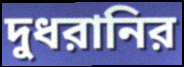
দুধরানির